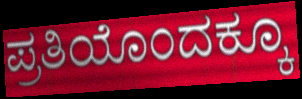
ಪ್ರತಿಯೊಂದಕ್ಕೂ